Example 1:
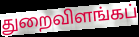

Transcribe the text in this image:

துறைவிளங்கப்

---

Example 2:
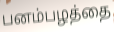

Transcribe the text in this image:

பனம்பழத்தை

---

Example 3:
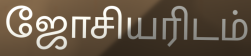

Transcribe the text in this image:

ஜோசியரிடம்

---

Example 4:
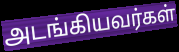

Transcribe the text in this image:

அடங்கியவர்கள்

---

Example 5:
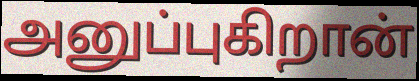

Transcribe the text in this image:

அனுப்புகிறான்